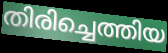
തിരിച്ചെത്തിയ